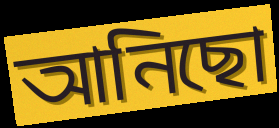
আনিছো